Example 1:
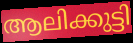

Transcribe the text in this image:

ആലിക്കുട്ടി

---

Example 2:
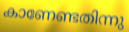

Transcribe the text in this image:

കാണേണ്ടതിന്നു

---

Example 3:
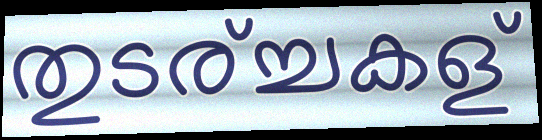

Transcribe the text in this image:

തുടര്ച്ചകള്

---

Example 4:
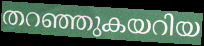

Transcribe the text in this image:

തറഞ്ഞുകയറിയ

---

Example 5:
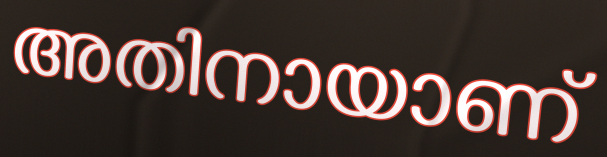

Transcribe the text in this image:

അതിനായാണ്